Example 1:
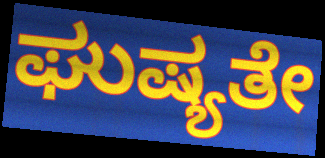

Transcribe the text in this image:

ಘುಷ್ಯತೇ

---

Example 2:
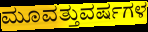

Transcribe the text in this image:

ಮೂವತ್ತುವರ್ಷಗಳ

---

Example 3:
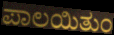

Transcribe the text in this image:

ಪಾಲಯಿತುಂ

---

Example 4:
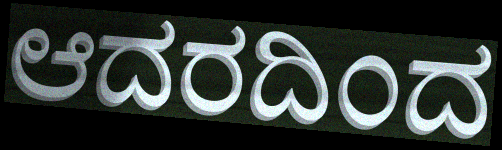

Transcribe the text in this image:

ಆದರದಿಂದ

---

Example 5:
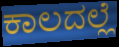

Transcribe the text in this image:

ಕಾಲದಲ್ಲೆ